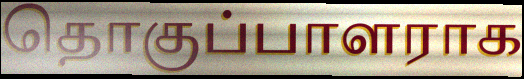
தொகுப்பாளராக